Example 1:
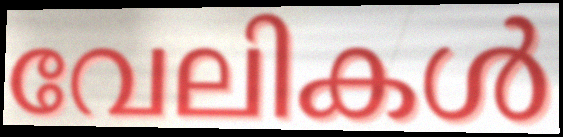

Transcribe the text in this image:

വേലികൾ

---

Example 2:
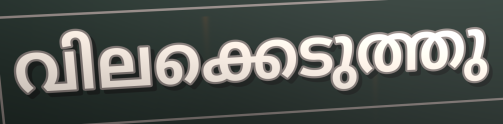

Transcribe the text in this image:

വിലക്കെടുത്തു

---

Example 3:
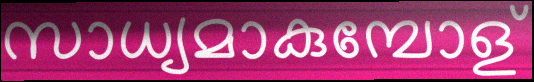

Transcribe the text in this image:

സാധ്യമാകുമ്പോള്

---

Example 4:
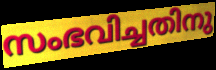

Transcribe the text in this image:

സംഭവിച്ചതിനു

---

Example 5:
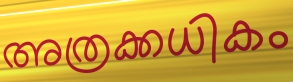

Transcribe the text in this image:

അത്രക്കധികം